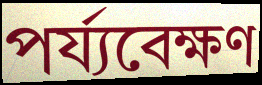
পৰ্য্যবেক্ষণ